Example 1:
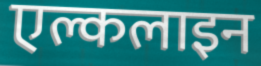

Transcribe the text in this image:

एल्कलाइन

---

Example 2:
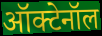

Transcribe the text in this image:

ऑक्टेनॉल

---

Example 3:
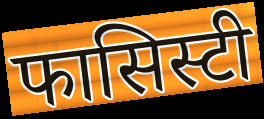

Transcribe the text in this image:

फासिस्टी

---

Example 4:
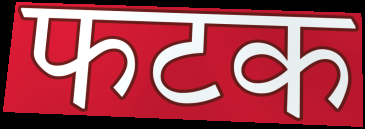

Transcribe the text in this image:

फटक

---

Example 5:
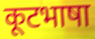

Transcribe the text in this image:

कूटभाषा